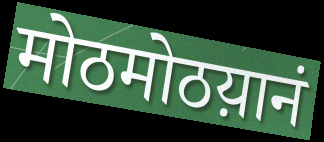
मोठमोठय़ानं